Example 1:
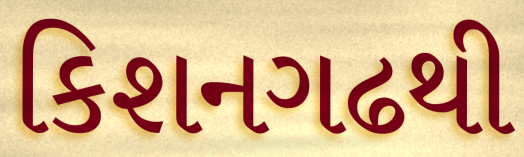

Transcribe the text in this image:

કિશનગઢથી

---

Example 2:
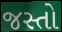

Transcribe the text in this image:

જસ્તો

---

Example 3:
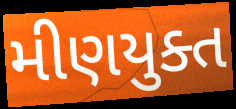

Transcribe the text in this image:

મીણયુક્ત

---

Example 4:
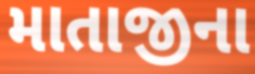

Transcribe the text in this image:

માતાજીના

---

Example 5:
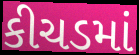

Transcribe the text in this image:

કીચડમાં